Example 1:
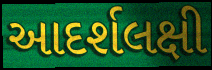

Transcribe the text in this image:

આદર્શલક્ષી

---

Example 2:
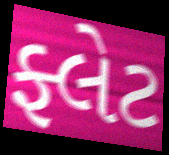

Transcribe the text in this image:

ફ્લેટ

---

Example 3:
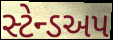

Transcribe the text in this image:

સ્ટેન્ડઅપ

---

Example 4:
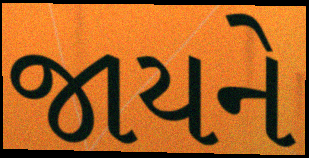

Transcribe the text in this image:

જાયને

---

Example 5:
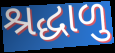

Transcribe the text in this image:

શ્રદ્ધાળુ